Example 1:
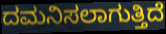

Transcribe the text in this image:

ದಮನಿಸಲಾಗುತ್ತಿದೆ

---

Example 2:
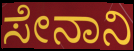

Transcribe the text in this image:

ಸೇನಾನಿ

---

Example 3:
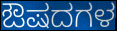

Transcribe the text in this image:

ಔಷದಗಳ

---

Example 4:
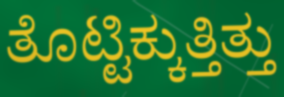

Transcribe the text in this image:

ತೊಟ್ಟಿಕ್ಕುತ್ತಿತ್ತು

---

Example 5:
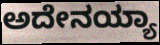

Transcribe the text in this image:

ಅದೇನಯ್ಯಾ